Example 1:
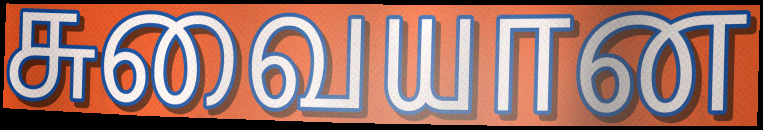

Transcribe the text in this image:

சுவையான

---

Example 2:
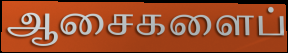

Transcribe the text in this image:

ஆசைகளைப்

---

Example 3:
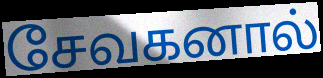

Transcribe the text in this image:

சேவகனால்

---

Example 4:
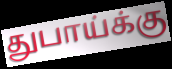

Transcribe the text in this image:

துபாய்க்கு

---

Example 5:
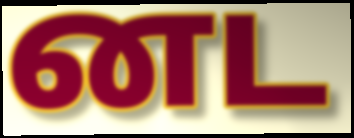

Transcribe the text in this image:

னட